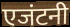
एजंटनी